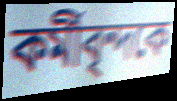
কর্মীবৃন্দকে